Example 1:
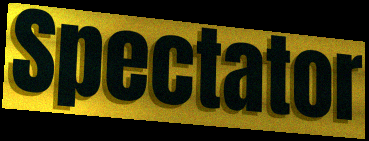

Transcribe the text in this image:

Spectator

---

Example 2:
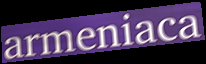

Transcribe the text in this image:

armeniaca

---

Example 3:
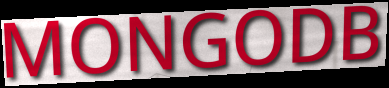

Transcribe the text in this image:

MONGODB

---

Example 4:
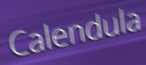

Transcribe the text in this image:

Calendula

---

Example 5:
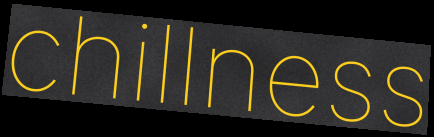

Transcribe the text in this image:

chillness